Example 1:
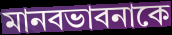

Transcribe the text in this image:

মানবভাবনাকে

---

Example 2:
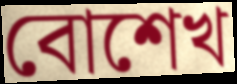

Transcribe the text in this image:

বোশেখ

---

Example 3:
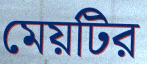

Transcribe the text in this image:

মেয়টির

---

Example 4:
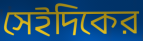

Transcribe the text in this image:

সেইদিকের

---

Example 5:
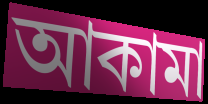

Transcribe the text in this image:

আকামা